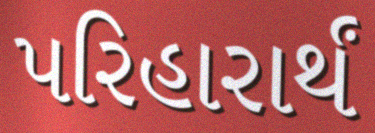
પરિહારાર્થં